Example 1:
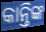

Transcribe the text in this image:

କାନ୍ତିଙ୍କ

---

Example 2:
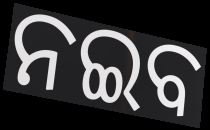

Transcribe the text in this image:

ନଇବ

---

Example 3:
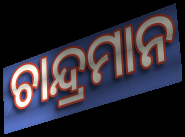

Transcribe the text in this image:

ଚାନ୍ଦ୍ରମାନ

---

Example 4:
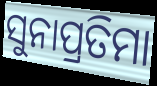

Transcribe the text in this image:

ସୁନାପ୍ରତିମା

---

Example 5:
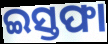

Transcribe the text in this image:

ଇସ୍ତଫା